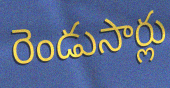
రెండుసార్లు